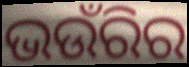
ଭଉଁରିର